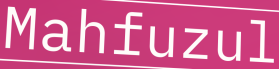
Mahfuzul